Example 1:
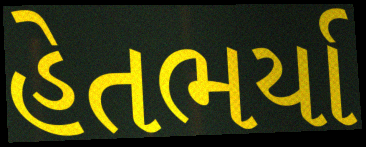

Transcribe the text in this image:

હેતભર્યા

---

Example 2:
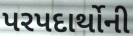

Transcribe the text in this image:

પરપદાર્થોની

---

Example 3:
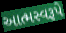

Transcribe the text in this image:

આત્મસ્વરૂપે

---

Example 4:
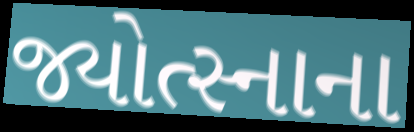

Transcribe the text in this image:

જ્યોત્સ્નાના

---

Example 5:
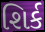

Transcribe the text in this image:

શિર્ક